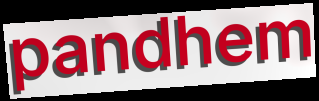
pandhem